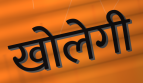
खोलेगी